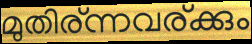
മുതിര്ന്നവര്ക്കും